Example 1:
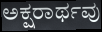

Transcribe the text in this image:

ಅಕ್ಷರಾರ್ಥವು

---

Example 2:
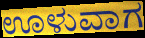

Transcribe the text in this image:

ಊಳುವಾಗ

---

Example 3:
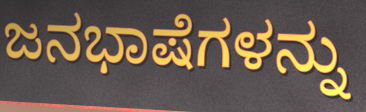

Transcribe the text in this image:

ಜನಭಾಷೆಗಳನ್ನು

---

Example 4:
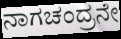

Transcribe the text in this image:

ನಾಗಚಂದ್ರನೇ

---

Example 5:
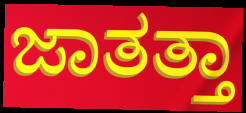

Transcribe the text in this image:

ಜಾತತ್ತಾ